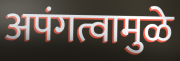
अपंगत्वामुळे